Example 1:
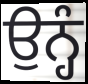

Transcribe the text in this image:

ਉਨ੍ਹੰ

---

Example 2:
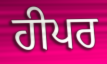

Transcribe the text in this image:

ਹੀਪਰ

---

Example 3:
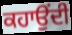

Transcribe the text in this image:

ਕਹਾਉਂਦੀ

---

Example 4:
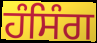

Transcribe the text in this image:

ਹੰਸਿੰਗ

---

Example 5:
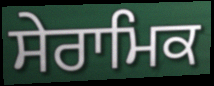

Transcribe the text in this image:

ਸੇਰਾਮਿਕ